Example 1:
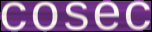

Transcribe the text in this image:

cosec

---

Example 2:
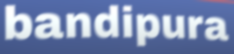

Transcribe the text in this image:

bandipura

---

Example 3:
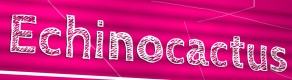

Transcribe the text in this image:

Echinocactus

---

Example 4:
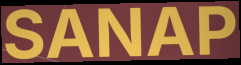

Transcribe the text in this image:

SANAP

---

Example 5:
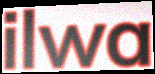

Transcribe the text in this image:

ilwa